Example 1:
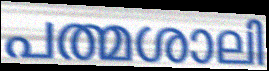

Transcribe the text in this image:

പത്മശാലി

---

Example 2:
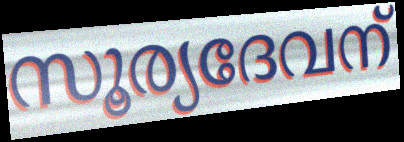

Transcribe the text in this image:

സൂര്യദേവന്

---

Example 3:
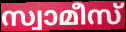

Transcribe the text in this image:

സ്വാമീസ്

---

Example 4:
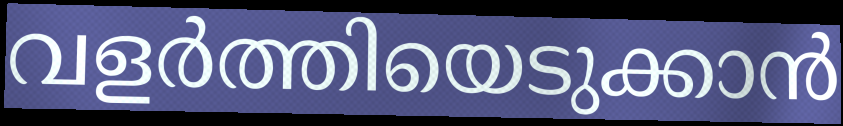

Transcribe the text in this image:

വളർത്തിയെടുക്കാൻ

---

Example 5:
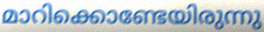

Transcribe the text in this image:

മാറിക്കൊണ്ടേയിരുന്നു